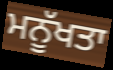
ਮਨੂੱਖਤਾ